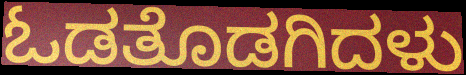
ಓಡತೊಡಗಿದಳು